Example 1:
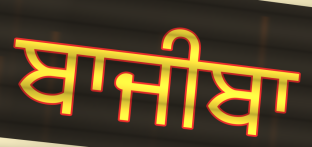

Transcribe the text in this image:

ਬਾਜੀਬਾ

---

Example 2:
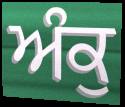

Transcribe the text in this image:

ਅੰਕੁ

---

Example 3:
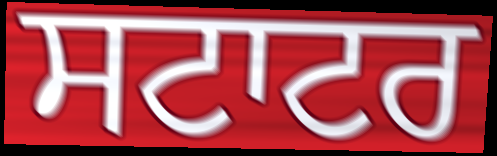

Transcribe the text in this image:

ਸਟਾਟਰ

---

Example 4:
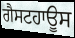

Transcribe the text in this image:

ਗੈਸਟਹਾਊਸ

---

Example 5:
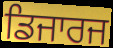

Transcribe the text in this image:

ਡਿਜਾਰਜ